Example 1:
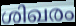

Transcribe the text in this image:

ശിഖരം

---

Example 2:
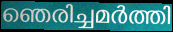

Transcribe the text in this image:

ഞെരിച്ചമർത്തി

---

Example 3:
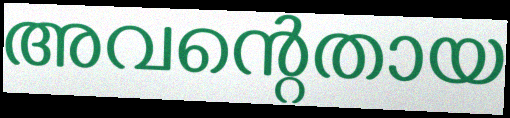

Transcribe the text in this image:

അവന്റെതായ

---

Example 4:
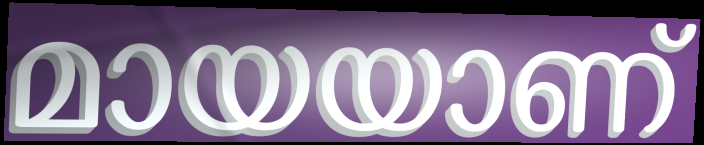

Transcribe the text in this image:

മായയാണ്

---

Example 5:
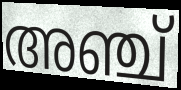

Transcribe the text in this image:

അഞ്ച്